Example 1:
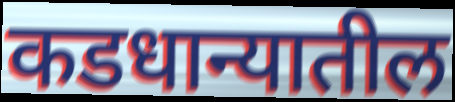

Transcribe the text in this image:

कडधान्यातील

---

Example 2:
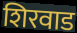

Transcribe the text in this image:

शिरवाड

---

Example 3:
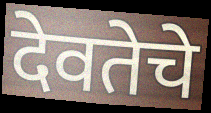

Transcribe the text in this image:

देवतेचे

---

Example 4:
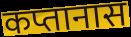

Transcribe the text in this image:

कप्तानास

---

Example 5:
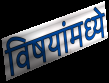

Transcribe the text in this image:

विषयांमध्ये